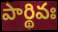
పార్థివః